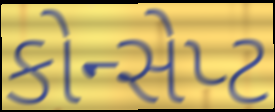
કોન્સેપ્ટ